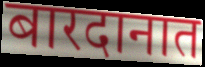
बारदानात